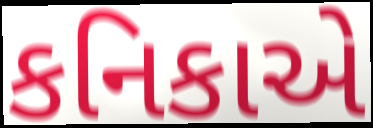
કનિકાએ